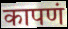
कापणं